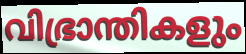
വിഭ്രാന്തികളും